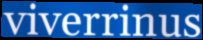
viverrinus